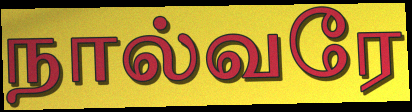
நால்வரே